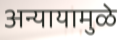
अन्यायामुळे